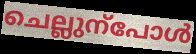
ചെല്ലുന്പോൾ